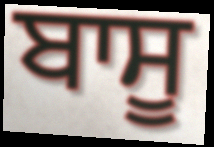
ਬਾਸੂ